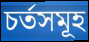
চৰ্তসমূহ